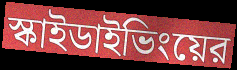
স্কাইডাইভিংয়ের